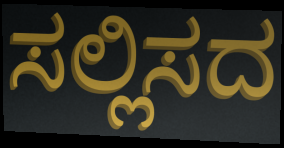
ಸಲ್ಲಿಸದ